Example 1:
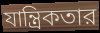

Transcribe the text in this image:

যান্ত্রিকতার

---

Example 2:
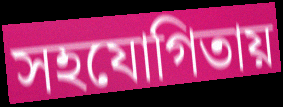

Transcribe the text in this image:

সহযোগিতায়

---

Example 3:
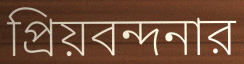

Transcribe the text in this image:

প্রিয়বন্দনার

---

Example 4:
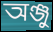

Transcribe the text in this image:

অঞ্জু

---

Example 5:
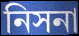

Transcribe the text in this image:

নিসনা